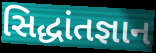
સિદ્ધાંતજ્ઞાન